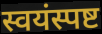
स्वयंस्पष्ट